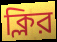
ক্লির